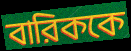
বারিককে